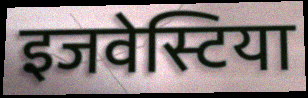
इजवेस्टिया